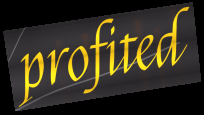
profited